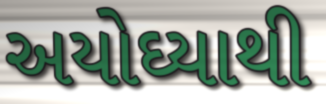
અયોઘ્યાથી